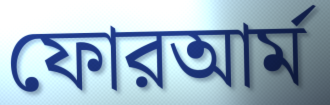
ফোরআর্ম